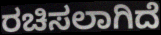
ರಚಿಸಲಾಗಿದೆ